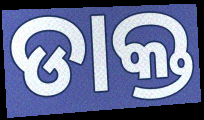
ଡାକ୍ତ